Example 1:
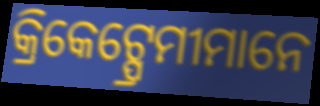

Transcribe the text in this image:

କ୍ରିକେଟ୍ପ୍ରେମୀମାନେ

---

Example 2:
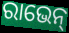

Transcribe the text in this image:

ରାଭେନ୍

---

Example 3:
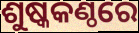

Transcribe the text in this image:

ଶୁଷ୍କକଣ୍ଠରେ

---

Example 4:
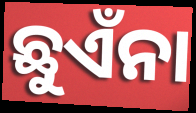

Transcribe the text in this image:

ଛୁଏଁନା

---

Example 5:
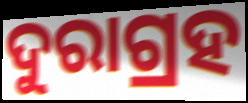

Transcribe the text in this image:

ଦୁରାଗ୍ରହ